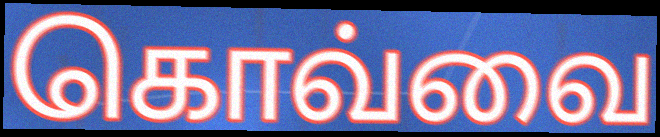
கொவ்வை